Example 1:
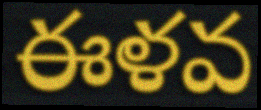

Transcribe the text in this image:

ఈళవ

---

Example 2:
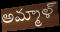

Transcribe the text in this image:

అమ్మాళ్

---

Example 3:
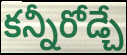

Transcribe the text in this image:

కన్నీరోడ్చే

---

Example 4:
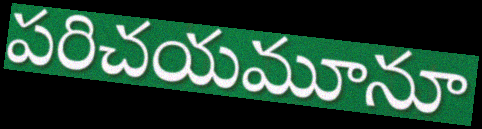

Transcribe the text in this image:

పరిచయమూనూ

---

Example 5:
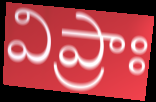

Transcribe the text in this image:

విప్రాః